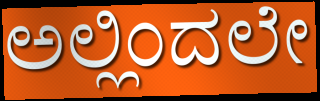
ಅಲ್ಲಿಂದಲೇ